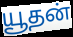
யூதன்